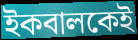
ইকবালকেই